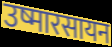
उष्मारसायन